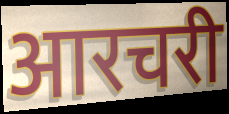
आरचरी